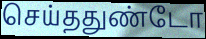
செய்ததுண்டோ